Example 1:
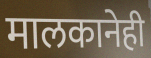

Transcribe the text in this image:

मालकानेही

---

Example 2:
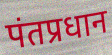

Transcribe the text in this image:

पंतप्रधान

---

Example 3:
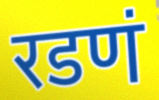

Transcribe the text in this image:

रडणं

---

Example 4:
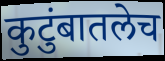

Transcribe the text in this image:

कुटुंबातलेच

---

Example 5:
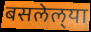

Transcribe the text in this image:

बसलेल्या